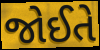
જોઈતે